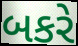
બકરે